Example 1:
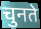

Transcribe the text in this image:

चुनते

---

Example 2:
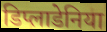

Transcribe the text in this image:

डिप्लाडेनिया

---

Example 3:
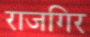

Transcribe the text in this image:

राजगिर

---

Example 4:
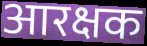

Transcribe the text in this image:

आरक्षक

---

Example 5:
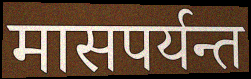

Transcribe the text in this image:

मासपर्यन्त